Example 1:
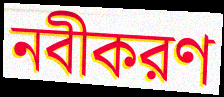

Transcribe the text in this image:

নবীকরণ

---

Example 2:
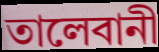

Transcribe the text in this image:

তালেবানী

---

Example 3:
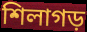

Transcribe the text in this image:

শিলাগড়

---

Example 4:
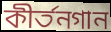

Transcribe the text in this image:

কীর্তনগান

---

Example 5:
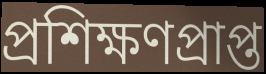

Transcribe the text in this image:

প্রশিক্ষণপ্রাপ্ত